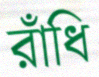
রাঁধি